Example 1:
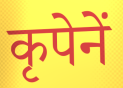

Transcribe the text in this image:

कृपेनें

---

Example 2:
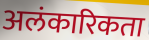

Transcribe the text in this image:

अलंकारिकता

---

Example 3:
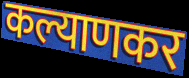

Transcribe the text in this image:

कल्याणकर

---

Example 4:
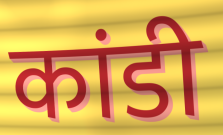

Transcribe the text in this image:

कांडी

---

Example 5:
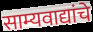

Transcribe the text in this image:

साम्यवाद्यांचे